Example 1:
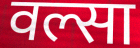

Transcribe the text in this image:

वल्सा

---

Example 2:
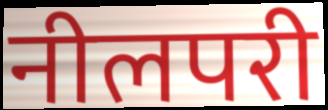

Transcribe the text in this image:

नीलपरी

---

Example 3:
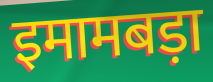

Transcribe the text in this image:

इमामबड़ा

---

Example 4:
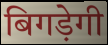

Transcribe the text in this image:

बिगड़ेगी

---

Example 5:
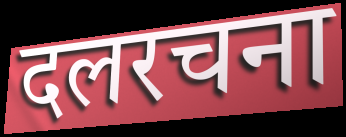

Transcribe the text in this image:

दलरचना